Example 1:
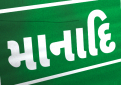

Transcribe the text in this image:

માનાદિ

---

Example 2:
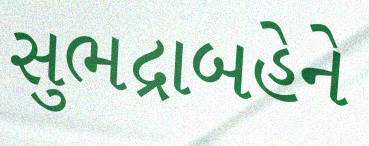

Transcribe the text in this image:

સુભદ્રાબહેને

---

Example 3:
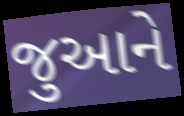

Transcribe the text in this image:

જુઆને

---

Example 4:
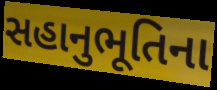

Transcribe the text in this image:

સહાનુભૂતિના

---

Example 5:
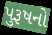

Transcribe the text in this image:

પુરૂષનો